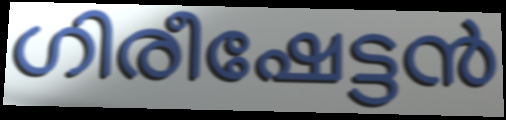
ഗിരീഷേട്ടൻ